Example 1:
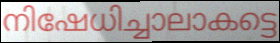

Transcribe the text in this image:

നിഷേധിച്ചാലാകട്ടെ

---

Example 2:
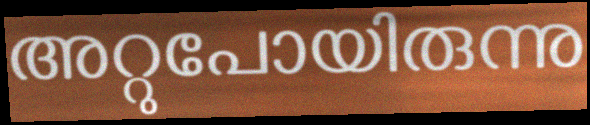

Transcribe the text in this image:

അറ്റുപോയിരുന്നു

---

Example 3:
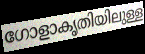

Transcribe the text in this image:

ഗോളാകൃതിയിലുള്ള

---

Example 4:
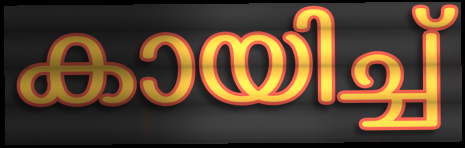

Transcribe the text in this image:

കായിച്ച്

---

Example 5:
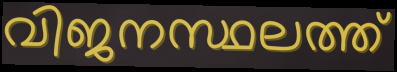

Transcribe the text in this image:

വിജനസ്ഥലത്ത്